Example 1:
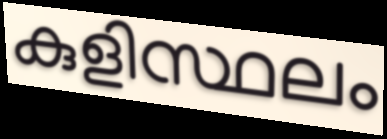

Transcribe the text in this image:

കുളിസ്ഥലം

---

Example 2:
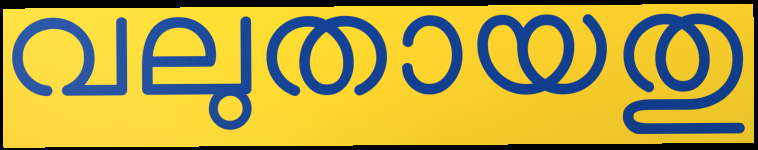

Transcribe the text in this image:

വലുതായതു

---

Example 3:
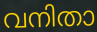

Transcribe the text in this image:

വനിതാ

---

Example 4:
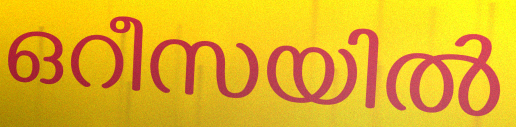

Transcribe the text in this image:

ഒറീസയിൽ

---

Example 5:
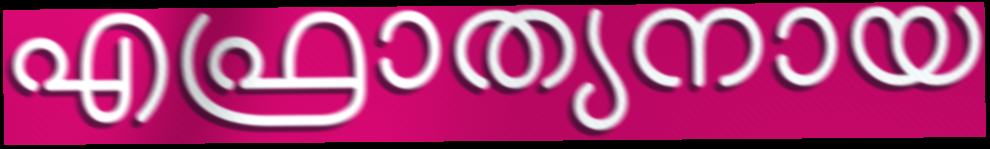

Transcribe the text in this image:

എഫ്രാത്യനായ